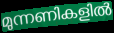
മുന്നണികളിൽ